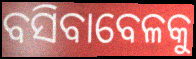
ବସିବାବେଳକୁ